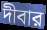
দীবার